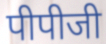
पीपीजी